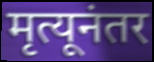
मृत्यूनंतर